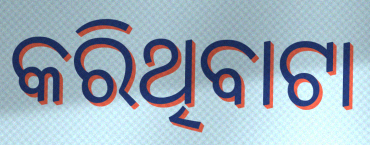
କରିଥିବାଟା